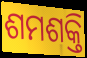
ଶମଶକ୍ତି